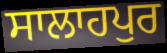
ਸਾਲਾਹਪੁਰ